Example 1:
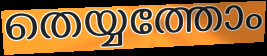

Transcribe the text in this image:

തെയ്യത്തോം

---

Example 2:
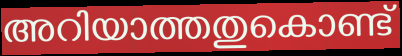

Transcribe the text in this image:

അറിയാത്തതുകൊണ്ട്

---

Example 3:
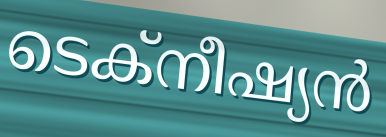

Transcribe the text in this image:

ടെക്നീഷ്യൻ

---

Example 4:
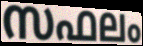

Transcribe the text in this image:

സഫലം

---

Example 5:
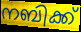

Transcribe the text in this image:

നബിക്ക്